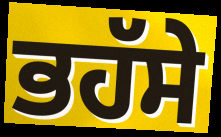
ਭਹੱਸੇ